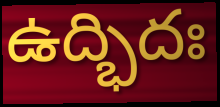
ఉద్భిదః